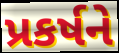
પ્રકર્ષને